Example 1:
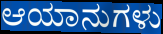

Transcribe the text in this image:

ಆಯಾನುಗಳು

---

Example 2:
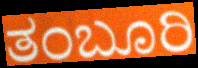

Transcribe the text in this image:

ತಂಬೂರಿ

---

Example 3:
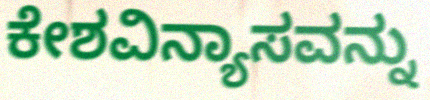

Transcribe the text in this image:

ಕೇಶವಿನ್ಯಾಸವನ್ನು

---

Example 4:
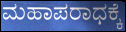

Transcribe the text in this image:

ಮಹಾಪರಾಧಕ್ಕೆ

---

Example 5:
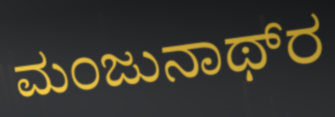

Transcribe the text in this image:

ಮಂಜುನಾಥ್‌ರ